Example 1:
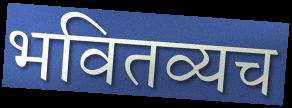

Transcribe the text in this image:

भवितव्यच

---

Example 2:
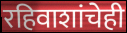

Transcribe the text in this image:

रहिवाशांचेही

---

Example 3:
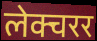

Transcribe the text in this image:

लेक्चरर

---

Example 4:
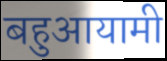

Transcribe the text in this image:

बहुआयामी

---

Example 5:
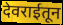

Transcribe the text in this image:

देवराईतून